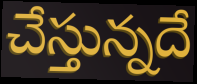
చేస్తున్నదే